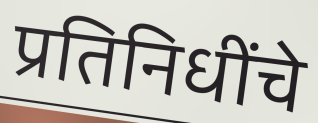
प्रतिनिधींचे